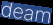
deam